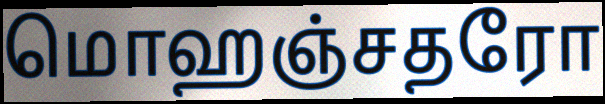
மொஹஞ்சதரோ